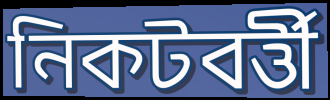
নিকটবর্ত্তী